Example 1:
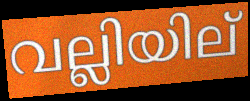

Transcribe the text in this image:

വല്ലിയില്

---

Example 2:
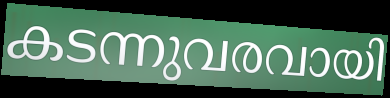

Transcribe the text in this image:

കടന്നുവരവായി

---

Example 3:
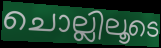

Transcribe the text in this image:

ചൊല്ലിലൂടെ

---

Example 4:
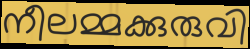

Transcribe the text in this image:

നീലമ്മക്കുരുവി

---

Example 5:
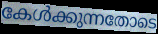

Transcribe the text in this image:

കേൾക്കുന്നതോടെ